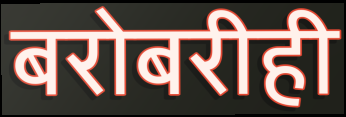
बरोबरीही